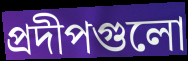
প্রদীপগুলো